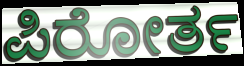
ಪಿರೋರ್ತ